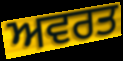
ਅਵਰਤ